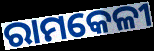
ରାମକେଳୀ